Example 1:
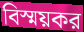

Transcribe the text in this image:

বিস্ময়কর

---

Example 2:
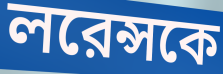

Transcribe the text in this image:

লরেন্সকে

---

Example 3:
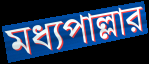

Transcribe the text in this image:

মধ্যপাল্লার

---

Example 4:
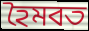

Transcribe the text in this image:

হৈমবত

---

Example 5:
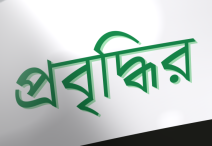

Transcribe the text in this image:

প্রবৃদ্ধির